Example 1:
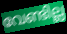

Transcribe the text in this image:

വേണ്ടില്ല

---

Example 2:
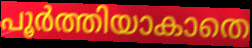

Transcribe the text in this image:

പൂർത്തിയാകാതെ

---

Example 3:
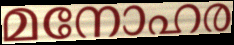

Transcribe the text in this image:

മനോഹര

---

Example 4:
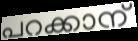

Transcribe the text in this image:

പറക്കാന്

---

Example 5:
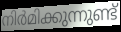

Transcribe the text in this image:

നിർമിക്കുന്നുണ്ട്